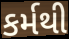
કર્મથી